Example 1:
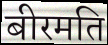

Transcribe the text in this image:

बीरमति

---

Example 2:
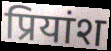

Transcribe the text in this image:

प्रियांश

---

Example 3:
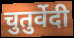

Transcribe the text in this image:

चुतुर्वेदी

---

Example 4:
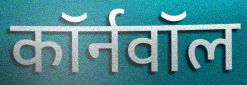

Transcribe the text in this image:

कॉर्नवॉल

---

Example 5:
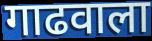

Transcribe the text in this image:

गाढवाला